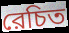
রেচিত